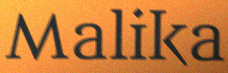
Malika